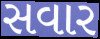
સવાર